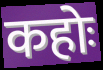
कहोः